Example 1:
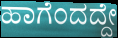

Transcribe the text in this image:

ಹಾಗೆಂದದ್ದೇ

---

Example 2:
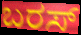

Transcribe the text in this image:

ಬರಸ್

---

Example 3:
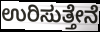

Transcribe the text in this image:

ಉರಿಸುತ್ತೇನೆ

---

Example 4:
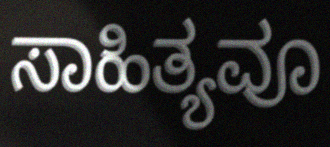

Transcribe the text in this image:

ಸಾಹಿತ್ಯವೂ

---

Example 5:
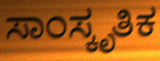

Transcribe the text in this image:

ಸಾಂಸ್ಕೃತಿಕ